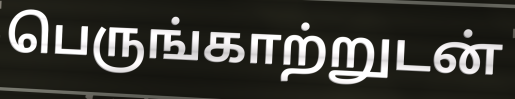
பெருங்காற்றுடன்